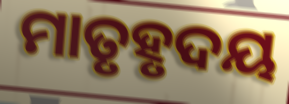
ମାତୃହୃଦୟ